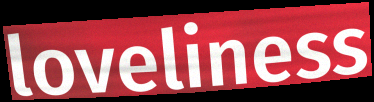
loveliness